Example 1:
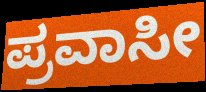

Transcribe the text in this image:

ಪ್ರವಾಸೀ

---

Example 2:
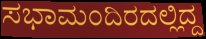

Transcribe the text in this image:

ಸಭಾಮಂದಿರದಲ್ಲಿದ್ದ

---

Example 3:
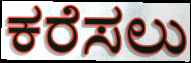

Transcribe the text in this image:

ಕರೆಸಲು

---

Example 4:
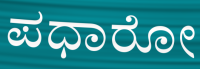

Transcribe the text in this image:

ಪಧಾರೋ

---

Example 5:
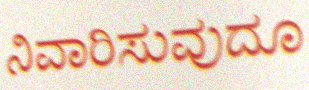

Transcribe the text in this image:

ನಿವಾರಿಸುವುದೂ